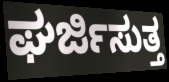
ಘರ್ಜಿಸುತ್ತ